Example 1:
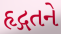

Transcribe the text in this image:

હૃદ્ગતને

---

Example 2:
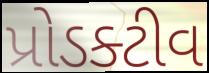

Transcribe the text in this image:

પ્રોડક્ટીવ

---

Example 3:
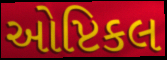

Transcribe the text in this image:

ઓપ્ટિકલ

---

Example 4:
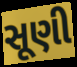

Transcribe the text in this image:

સૂણી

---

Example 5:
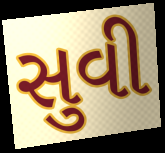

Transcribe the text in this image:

સુવી